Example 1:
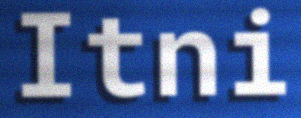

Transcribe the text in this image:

Itni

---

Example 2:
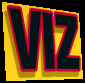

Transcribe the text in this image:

VIZ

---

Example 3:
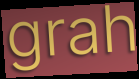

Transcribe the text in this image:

grah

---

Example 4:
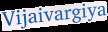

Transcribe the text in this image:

Vijaivargiya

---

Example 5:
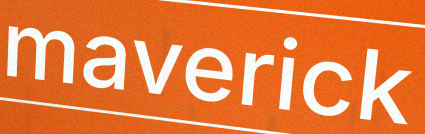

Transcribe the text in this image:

maverick